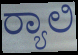
ರ‍್ಯಾಲಿ